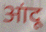
आंदू